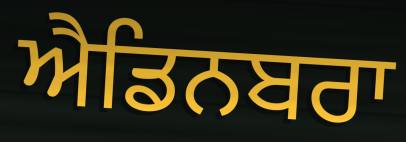
ਐਡਿਨਬਰਾ